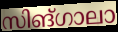
സിങ്ഗാലാ